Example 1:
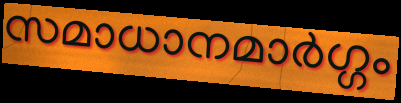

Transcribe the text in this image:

സമാധാനമാർഗ്ഗം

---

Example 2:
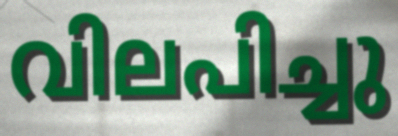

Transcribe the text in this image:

വിലപിച്ചു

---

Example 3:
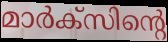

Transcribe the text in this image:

മാർക്സിന്റെ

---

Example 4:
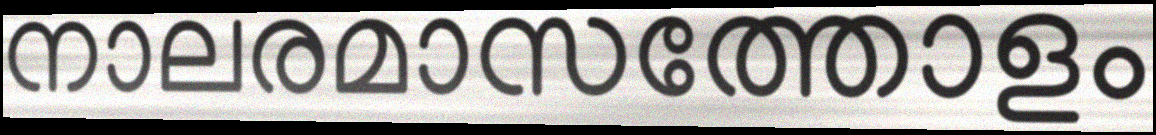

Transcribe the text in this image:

നാലരമാസത്തോളം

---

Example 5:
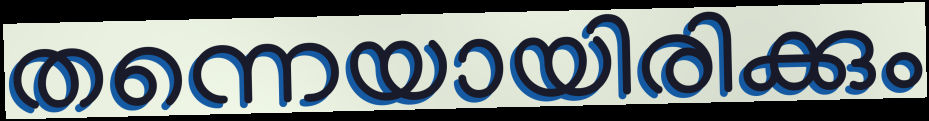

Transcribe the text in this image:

തന്നെയായിരിക്കും